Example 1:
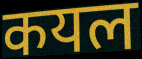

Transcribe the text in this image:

कयल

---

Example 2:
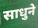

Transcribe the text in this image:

साधुने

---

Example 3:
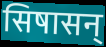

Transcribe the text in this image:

सिषासन्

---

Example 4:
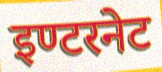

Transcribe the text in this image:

इण्टरनेट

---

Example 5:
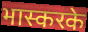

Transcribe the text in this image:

भास्करके